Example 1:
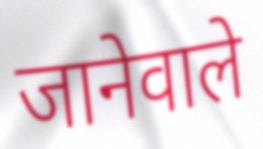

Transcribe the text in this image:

जानेवाले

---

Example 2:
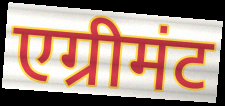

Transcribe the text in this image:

एग्रीमंट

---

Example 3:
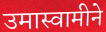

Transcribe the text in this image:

उमास्वामीने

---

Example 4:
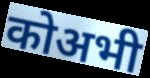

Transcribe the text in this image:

कोअभी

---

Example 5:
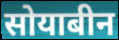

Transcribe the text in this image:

सोयाबीन